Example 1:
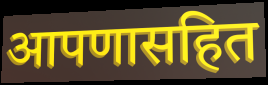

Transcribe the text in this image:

आपणासहित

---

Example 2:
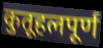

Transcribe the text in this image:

कुतूहलपूर्ण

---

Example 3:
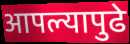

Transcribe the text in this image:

आपल्यापुढे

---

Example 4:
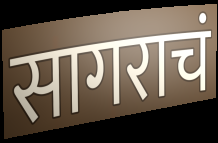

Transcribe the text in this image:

सागराचं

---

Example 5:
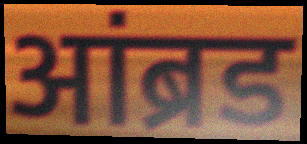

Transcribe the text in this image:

आंब्रड